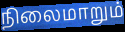
நிலைமாறும்